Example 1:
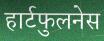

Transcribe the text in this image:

हार्टफुलनेस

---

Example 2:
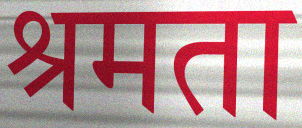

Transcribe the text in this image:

श्रमता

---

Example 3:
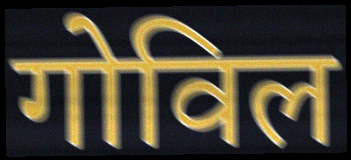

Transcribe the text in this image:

गोविल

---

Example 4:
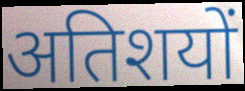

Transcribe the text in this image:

अतिशयों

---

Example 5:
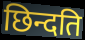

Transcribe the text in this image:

छिन्दति